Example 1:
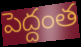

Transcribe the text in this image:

పెద్దంత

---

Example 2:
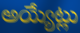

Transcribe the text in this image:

అయ్యేట్లు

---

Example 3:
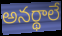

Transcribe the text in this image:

అనర్థాలే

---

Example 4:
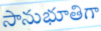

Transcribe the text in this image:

సానుభూతిగా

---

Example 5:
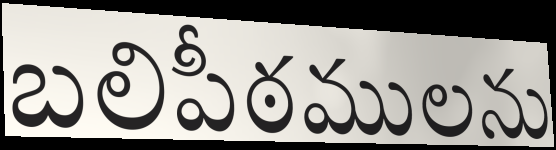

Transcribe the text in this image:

బలిపీఠములను